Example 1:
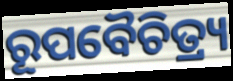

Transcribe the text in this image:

ରୂପବୈଚିତ୍ର୍ୟ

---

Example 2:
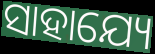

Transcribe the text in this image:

ସାହାଯ୍ୟେ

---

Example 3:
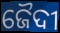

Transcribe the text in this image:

ଜୈଦୀ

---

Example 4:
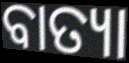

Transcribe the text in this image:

ବାତ୍ଯା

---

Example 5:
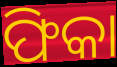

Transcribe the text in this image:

ଫିକା